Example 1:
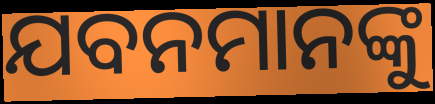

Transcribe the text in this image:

ଯବନମାନଙ୍କୁ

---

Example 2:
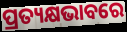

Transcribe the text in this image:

ପ୍ରତ୍ୟକ୍ଷଭାବରେ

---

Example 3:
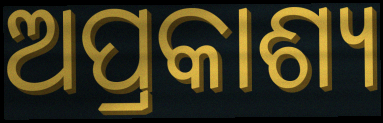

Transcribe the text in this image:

ଅପ୍ରକାଶ୍ୟ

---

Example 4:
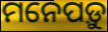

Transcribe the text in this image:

ମନେପଡ଼ୁ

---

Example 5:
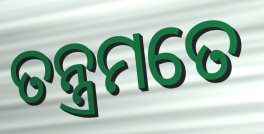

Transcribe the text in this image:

ତନ୍ତ୍ରମତେ